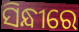
ସିନ୍ଧୀରେ